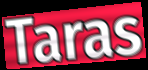
Taras